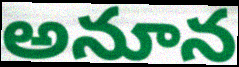
అనూన